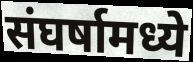
संघर्षामध्ये